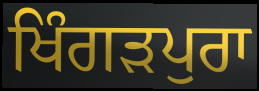
ਖਿੰਗੜਪੁਰਾ